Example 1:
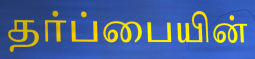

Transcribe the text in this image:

தர்ப்பையின்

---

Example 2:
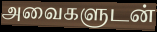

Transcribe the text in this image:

அவைகளுடன்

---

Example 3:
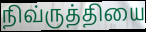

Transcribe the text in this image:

நிவ்ருத்தியை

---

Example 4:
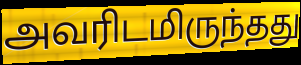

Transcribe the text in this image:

அவரிடமிருந்தது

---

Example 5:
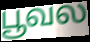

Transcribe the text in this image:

பூவல